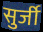
सुर्जी